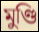
মুণ্ডি